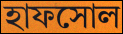
হাফসোল